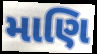
માણિ